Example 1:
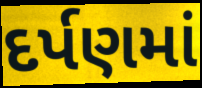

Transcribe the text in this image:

દર્પણમાં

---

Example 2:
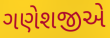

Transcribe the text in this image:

ગણેશજીએ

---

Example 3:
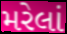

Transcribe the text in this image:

મરેલાં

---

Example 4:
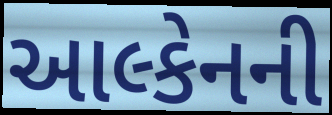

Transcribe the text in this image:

આલ્કેનની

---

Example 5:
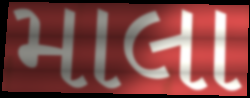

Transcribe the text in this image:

માલા